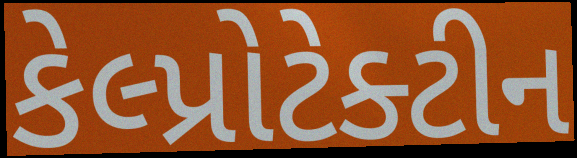
કેલ્પ્રોટેક્ટીન